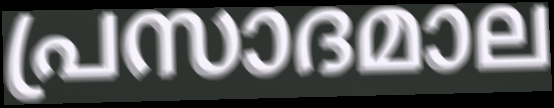
പ്രസാദമാല